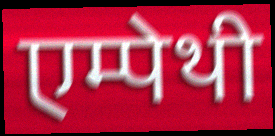
एम्पेथी